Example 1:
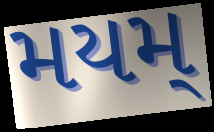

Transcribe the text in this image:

મયમ્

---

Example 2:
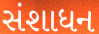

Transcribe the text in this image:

સંશાધન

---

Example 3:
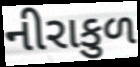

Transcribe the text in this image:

નીરાકુળ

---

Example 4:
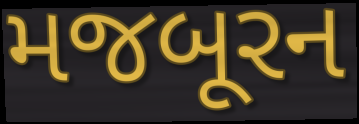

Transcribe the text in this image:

મજબૂરન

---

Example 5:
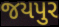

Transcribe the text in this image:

જયપુર